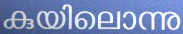
കുയിലൊന്നു